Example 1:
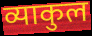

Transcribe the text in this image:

व्याकुल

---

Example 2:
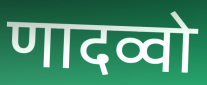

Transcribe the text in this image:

णादव्वो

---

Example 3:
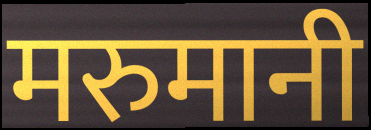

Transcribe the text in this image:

मरुमानी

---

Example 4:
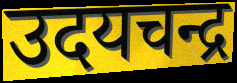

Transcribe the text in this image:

उदयचन्द्र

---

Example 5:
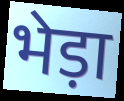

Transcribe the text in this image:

भेड़ा